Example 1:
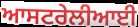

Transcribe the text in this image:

ਆਸਟਰੇਲੀਆਈ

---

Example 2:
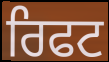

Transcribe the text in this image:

ਰਿਫਟ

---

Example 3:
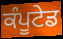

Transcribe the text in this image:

ਕੰਪੂਟੇਡ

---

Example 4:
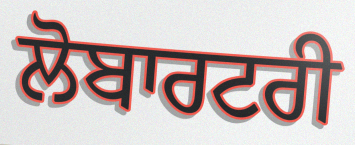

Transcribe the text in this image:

ਲੋਬਾਰਟਰੀ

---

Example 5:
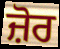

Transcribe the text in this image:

ਜ਼ੋਰ